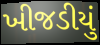
ખીજડીયું